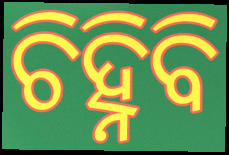
ଚିହ୍ନିବି